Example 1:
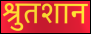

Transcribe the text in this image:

श्रुतशान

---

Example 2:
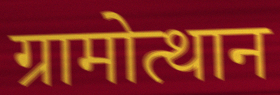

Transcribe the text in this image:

ग्रामोत्थान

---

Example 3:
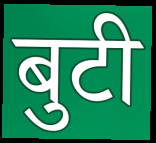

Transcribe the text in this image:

बुटी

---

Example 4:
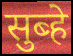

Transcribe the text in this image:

सुब्हे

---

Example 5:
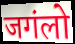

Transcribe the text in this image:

जगंलो